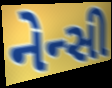
નેન્સી